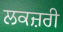
ਲਕਜ਼ਰੀ